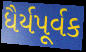
ધૈર્યપૂર્વક